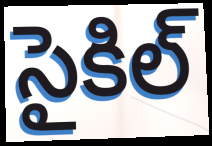
సైకిల్